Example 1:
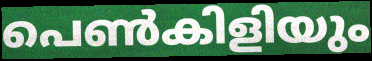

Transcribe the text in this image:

പെൺകിളിയും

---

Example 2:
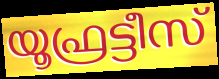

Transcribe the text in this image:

യൂഫ്രട്ടീസ്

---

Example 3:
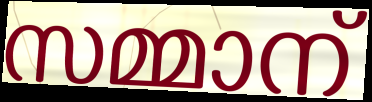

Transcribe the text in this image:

സമ്മാന്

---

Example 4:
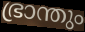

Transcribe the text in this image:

ഭ്രാന്തും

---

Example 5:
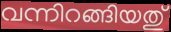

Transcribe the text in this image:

വന്നിറങ്ങിയതു്